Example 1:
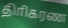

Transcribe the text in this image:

திரிகரண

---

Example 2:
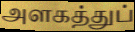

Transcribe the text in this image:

அளகத்துப்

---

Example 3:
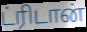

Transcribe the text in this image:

ட்ரிடான்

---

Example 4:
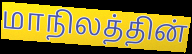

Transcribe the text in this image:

மாநிலத்தின்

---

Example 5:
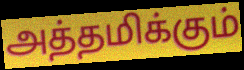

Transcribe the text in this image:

அத்தமிக்கும்